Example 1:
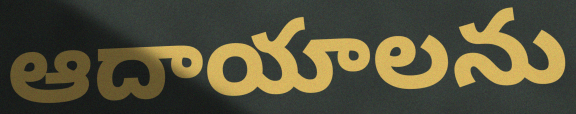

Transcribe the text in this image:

ఆదాయాలను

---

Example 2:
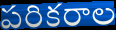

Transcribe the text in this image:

పరికరాల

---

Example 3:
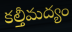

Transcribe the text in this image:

కల్తీమద్యం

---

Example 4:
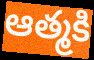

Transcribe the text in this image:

ఆత్మకి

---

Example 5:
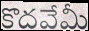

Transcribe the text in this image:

కొదవేమీ